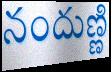
నందుణ్ణి